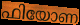
ഫിയോണ